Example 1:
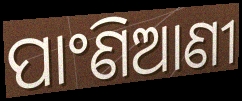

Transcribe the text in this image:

ପାଂଣିଆଣୀ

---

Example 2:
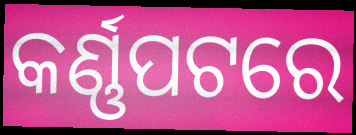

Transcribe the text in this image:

କର୍ଣ୍ଣପଟରେ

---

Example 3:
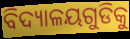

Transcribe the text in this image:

ବିଦ୍ୟାଳୟଗୁଡିକୁ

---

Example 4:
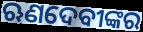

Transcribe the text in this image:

ଋଣଦେବୀଙ୍କର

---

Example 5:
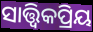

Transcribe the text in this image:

ସାତ୍ତ୍ଵିକପ୍ରିୟ